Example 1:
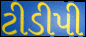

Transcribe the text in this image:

ટીડીપી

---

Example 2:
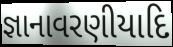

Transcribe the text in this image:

જ્ઞાનાવરણીયાદિ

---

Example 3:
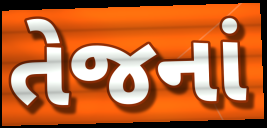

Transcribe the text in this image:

તેજનાં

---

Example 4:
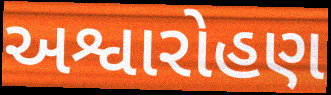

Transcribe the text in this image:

અશ્વારોહણ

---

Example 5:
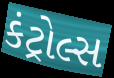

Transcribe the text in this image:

કંટ્રોલ્સ